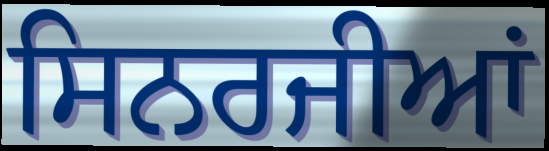
ਸਿਨਰਜੀਆਂ